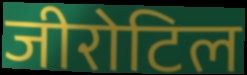
जीरोटिल